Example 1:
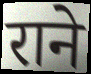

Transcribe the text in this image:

राने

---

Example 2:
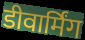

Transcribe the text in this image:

डीवार्मिंग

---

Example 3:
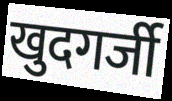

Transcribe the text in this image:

खुदगर्जी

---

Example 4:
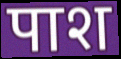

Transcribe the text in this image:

पाश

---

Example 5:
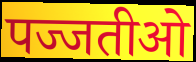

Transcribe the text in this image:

पज्जतीओ